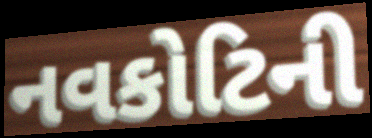
નવકોટિની